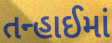
તન્હાઈમાં